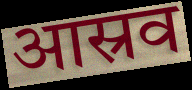
आस्रव